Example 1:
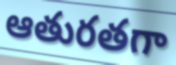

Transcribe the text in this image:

ఆతురతగా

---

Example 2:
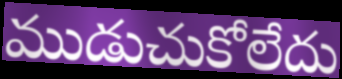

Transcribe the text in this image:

ముడుచుకోలేదు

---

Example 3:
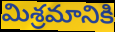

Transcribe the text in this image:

మిశ్రమానికి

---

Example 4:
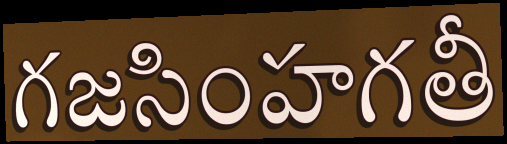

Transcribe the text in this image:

గజసింహగతీ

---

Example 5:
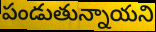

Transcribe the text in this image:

పండుతున్నాయని